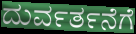
ದುರ್ವರ್ತನೆಗೆ